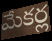
మేకర్ల